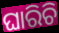
ଘାରିଚି